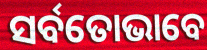
ସର୍ବତୋଭାବେ